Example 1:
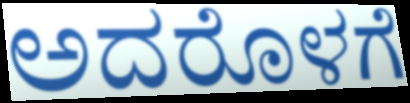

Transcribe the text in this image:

ಅದರೊಳಗೆ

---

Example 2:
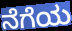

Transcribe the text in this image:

ನೆಗೆಯ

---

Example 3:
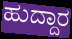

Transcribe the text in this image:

ಹುದ್ದಾರ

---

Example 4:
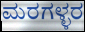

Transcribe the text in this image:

ಮರಗಳ್ಳರ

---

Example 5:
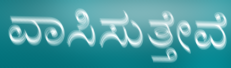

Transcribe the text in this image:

ವಾಸಿಸುತ್ತೇವೆ